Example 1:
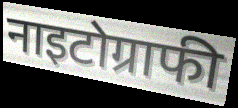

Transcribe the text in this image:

नाइटोग्राफी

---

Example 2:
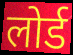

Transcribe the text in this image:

लोर्ड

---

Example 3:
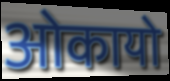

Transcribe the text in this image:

ओकायो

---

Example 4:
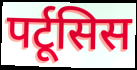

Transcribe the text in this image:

पर्टूसिस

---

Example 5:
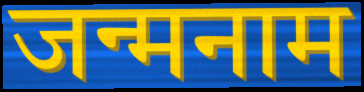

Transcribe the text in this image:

जन्मनाम